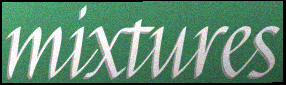
mixtures